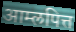
आम्लपित्त